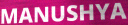
MANUSHYA